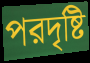
পরদৃষ্টি